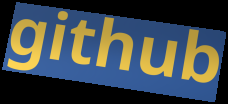
github